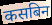
कसबिन